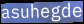
asuhegde